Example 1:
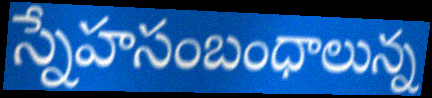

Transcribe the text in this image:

స్నేహసంబంధాలున్న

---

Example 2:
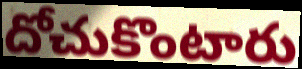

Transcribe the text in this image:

దోచుకొంటారు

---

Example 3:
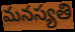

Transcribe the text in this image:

మనస్యతి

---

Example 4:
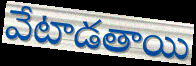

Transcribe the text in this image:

వేటాడతాయి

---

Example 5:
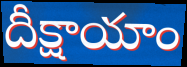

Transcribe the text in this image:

దీక్షాయాం